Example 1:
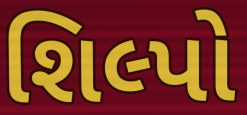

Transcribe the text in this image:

શિલ્પો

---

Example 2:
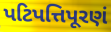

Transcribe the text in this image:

પટિપત્તિપૂરણં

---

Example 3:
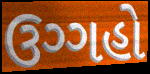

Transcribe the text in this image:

ઉગ્ગહો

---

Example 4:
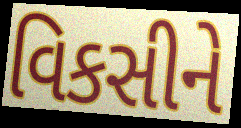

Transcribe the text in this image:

વિકસીને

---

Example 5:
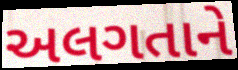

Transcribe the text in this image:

અલગતાને